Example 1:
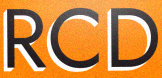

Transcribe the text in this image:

RCD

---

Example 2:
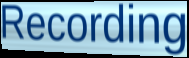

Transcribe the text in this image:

Recording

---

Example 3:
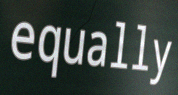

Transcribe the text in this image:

equally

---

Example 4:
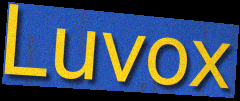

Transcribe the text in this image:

Luvox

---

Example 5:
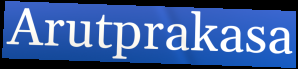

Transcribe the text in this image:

Arutprakasa